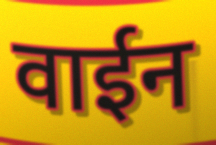
वाईन